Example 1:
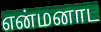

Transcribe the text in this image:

என்மனாட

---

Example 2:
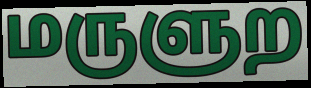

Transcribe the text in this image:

மருளுற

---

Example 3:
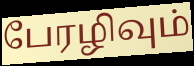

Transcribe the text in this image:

பேரழிவும்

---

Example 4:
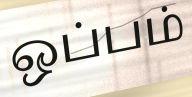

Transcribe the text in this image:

ஒப்பம்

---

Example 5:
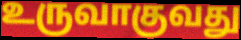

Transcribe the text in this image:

உருவாகுவது